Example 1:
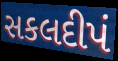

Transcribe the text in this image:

સકલદીપં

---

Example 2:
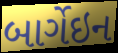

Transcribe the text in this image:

બાર્ગેઇન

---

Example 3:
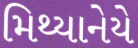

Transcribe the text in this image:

મિથ્યાનેયે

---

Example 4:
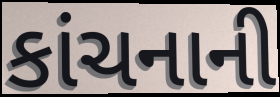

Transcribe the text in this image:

કાંચનાની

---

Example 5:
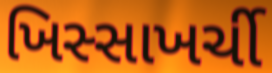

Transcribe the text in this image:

ખિસ્સાખર્ચી